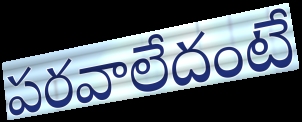
పరవాలేదంటే